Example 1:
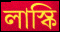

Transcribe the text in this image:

লাস্কি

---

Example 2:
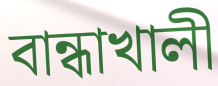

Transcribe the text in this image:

বান্ধাখালী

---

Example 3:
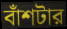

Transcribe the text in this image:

বাঁশটার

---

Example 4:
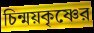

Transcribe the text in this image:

চিন্ময়কৃষ্ণের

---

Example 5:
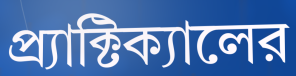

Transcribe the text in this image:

প্র্যাক্টিক্যালের